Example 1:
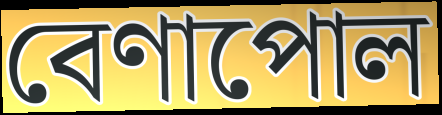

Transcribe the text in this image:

বেণাপোল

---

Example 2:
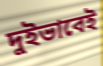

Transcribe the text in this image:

দুইভাবেই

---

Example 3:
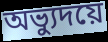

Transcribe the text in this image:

অভ্যুদয়ে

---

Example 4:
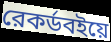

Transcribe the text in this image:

রেকর্ডবইয়ে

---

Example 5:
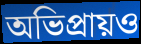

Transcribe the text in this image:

অভিপ্রায়ও